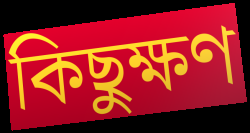
কিছুক্ষণ